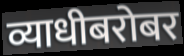
व्याधीबरोबर